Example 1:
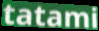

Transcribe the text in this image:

tatami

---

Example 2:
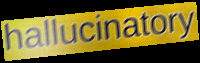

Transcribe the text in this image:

hallucinatory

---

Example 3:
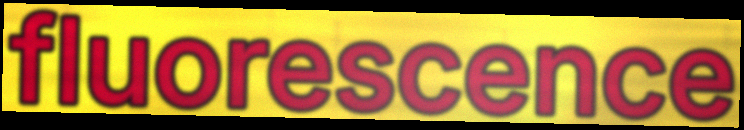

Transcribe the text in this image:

fluorescence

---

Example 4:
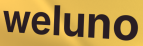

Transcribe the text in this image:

weluno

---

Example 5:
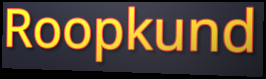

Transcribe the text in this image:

Roopkund